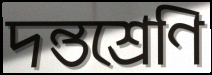
দন্তশ্রেণি